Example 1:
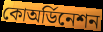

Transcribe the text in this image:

কোঅর্ডিনেশন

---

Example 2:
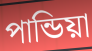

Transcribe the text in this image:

পান্ডিয়া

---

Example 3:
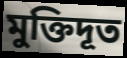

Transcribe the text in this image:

মুক্তিদূত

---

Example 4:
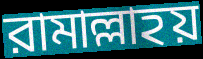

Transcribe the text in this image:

রামাল্লাহয়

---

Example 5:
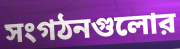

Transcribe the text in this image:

সংগঠনগুলোর